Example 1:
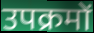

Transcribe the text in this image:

उपक्रमों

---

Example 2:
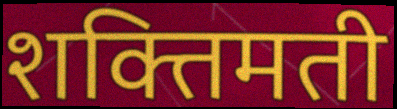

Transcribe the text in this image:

शक्तिमती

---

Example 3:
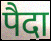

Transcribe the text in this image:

पैदा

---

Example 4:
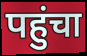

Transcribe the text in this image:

पहुंचा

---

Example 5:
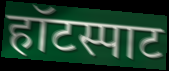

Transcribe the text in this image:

हॉटस्पाट